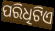
ପରିଧିଟିଏ